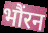
भौंरन